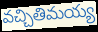
వచ్చితిమయ్య